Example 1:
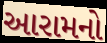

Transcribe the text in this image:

આરામનો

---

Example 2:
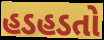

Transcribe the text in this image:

હડહડતો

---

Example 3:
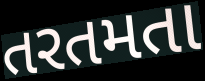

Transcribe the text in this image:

તરતમતા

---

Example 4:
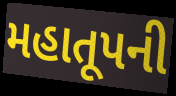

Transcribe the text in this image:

મહાતૂપની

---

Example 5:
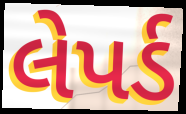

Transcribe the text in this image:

લેપર્ડ